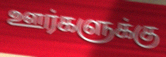
ஊர்களுக்கு